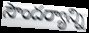
సౌందర్యాన్ని